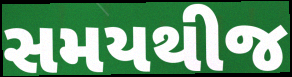
સમયથીજ